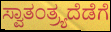
ಸ್ವಾತಂತ್ರ್ಯದೆಡೆಗೆ